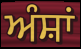
ਅੰਸ਼ਾਂ